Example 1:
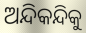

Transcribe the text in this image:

ଅନ୍ଦିକନ୍ଦିକୁ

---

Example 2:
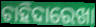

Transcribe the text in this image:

ଚାହିଦାରେଖା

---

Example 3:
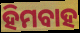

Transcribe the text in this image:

ହିମବାହ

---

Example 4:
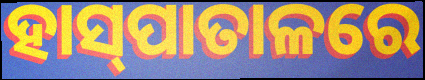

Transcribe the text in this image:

ହାସ୍‌ପାତାଳରେ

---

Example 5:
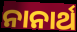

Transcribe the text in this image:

ନାନାର୍ଥ